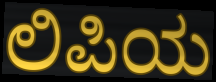
ಲಿಪಿಯ